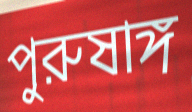
পুরুষাঙ্গ